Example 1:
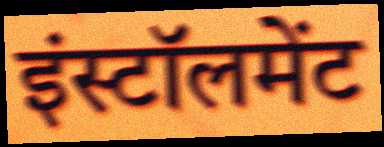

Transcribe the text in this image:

इंस्टॉलमेंट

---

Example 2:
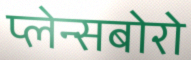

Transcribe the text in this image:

प्लेन्सबोरो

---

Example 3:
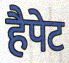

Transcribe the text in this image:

हैपेट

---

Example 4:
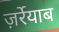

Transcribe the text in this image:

ज़र्रेयाब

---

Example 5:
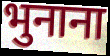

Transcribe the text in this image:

भुनाना